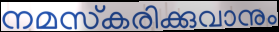
നമസ്‌കരിക്കുവാനും